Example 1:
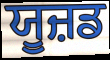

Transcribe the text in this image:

ਯੂਜ਼ਡ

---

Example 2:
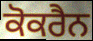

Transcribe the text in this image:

ਕੋਕਰੈਨ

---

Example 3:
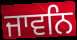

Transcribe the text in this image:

ਜਾਵਨਿ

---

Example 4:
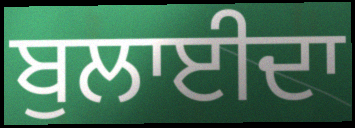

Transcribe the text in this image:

ਬੁਲਾਈਦਾ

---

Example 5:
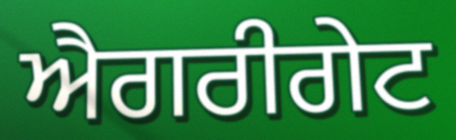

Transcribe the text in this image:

ਐਗਰੀਗੇਟ